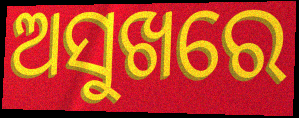
ଅସୁଖରେ